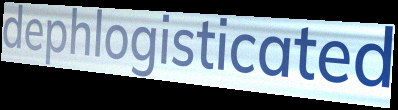
dephlogisticated